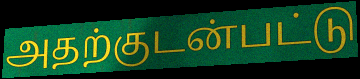
அதற்குடன்பட்டு